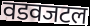
वडवजटल